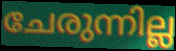
ചേരുന്നില്ല